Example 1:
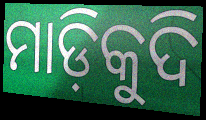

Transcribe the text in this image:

ମାଡ଼ିକୁଦି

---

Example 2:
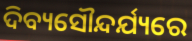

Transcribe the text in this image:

ଦିବ୍ୟସୌନ୍ଦର୍ଯ୍ୟରେ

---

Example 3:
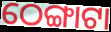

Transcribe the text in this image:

ଠେଙ୍ଗାଟା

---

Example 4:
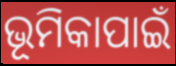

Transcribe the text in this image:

ଭୂମିକାପାଇଁ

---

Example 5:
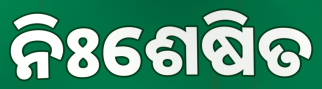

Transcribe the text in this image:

ନିଃଶେଷିତ